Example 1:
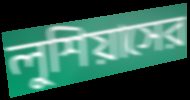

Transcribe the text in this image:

লুশিয়াসের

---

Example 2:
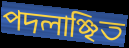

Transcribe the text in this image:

পদলাঞ্ছিত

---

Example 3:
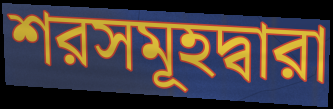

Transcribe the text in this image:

শরসমূহদ্বারা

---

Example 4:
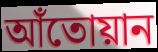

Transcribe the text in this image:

আঁতোয়ান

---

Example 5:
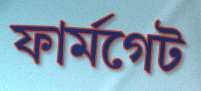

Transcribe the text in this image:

ফার্মগেট